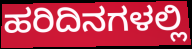
ಹರಿದಿನಗಳಲ್ಲಿ